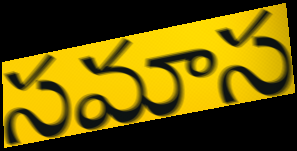
సమాస